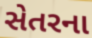
સેતરના